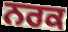
ਨਰਕ